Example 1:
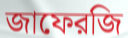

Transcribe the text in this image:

জাফেরজি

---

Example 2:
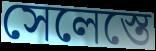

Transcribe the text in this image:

সেলেস্তে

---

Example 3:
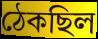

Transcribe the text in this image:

ঠেকছিল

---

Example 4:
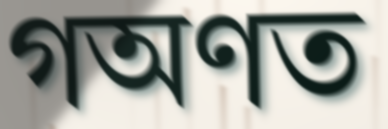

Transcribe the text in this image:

গঅণত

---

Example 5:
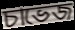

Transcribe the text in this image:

চাভেজ